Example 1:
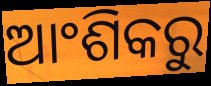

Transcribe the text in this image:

ଆଂଶିକରୁ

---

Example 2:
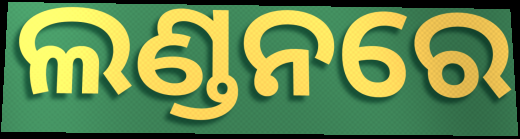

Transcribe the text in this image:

ଲଣ୍ଡନରେ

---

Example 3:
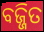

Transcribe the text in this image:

ବଜ୍ଜିତ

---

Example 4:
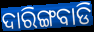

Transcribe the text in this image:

ଦାରିଙ୍ଗବାଡି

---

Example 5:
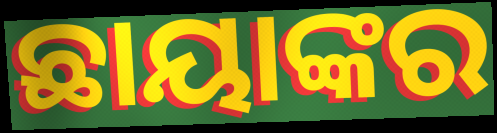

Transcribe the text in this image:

ଛାୟାଙ୍କର